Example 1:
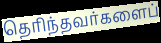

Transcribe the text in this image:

தெரிந்தவர்களைப்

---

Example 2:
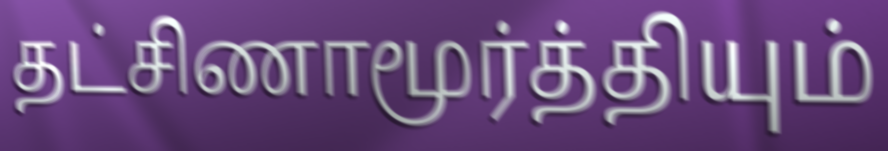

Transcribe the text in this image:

தட்சிணாமூர்த்தியும்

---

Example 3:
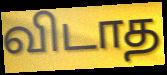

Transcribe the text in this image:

விடாத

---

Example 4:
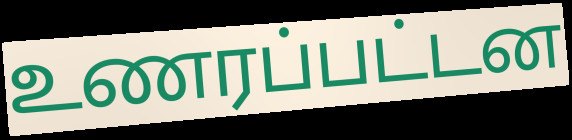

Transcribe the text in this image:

உணரப்பட்டன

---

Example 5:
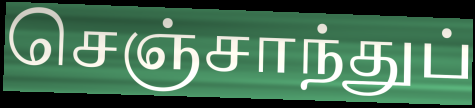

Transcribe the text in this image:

செஞ்சாந்துப்